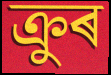
ক্ৰুৰ